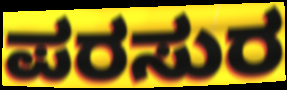
ಪರಸುರ